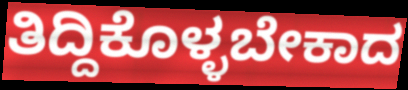
ತಿದ್ದಿಕೊಳ್ಳಬೇಕಾದ